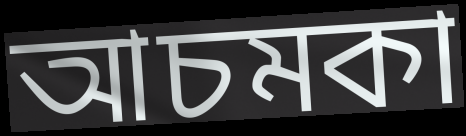
আচমকা